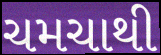
ચમચાથી